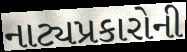
નાટ્યપ્રકારોની